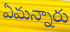
ఏమన్నారు